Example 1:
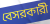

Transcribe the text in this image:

বেসরকারী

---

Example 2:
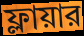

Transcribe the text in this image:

ফ্লায়ার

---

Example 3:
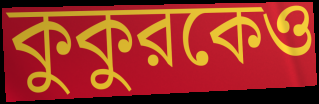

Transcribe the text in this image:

কুকুরকেও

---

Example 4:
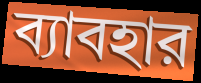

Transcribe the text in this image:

ব্যাবহার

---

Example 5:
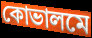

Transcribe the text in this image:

কোভালমে